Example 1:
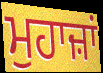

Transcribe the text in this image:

ਮੁਹਾਜ਼ਾਂ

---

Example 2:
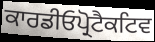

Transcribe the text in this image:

ਕਾਰਡੀਓਪ੍ਰੋਟੈਕਟਿਵ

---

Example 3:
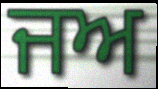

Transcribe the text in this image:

ਜਅ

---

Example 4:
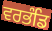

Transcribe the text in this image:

ਵਰਭੰਡਿ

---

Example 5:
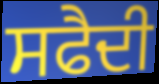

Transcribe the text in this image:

ਸਫੈਦੀ